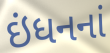
ઇંધનનાં